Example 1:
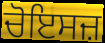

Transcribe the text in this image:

ਚੋਇਸਜ਼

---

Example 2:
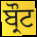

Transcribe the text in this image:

ਬ੍ਰੌਟ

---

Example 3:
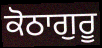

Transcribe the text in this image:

ਕੋਠਾਗੁਰੂ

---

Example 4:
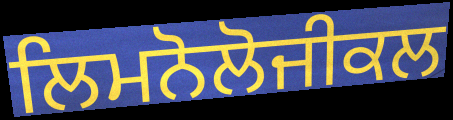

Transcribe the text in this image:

ਲਿਮਨੋਲੋਜੀਕਲ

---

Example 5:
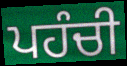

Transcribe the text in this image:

ਪਹੰਚੀ